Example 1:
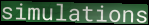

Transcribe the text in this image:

simulations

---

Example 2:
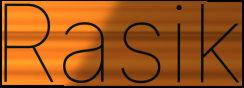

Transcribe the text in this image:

Rasik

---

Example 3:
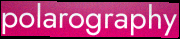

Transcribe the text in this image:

polarography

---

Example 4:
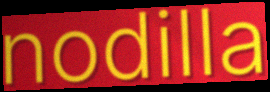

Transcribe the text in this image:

nodilla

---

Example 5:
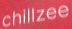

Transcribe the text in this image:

chillzee